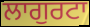
ਲਾਗੁਰਟਾ